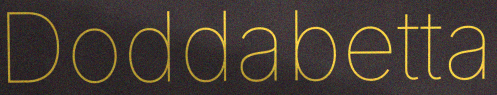
Doddabetta